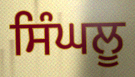
ਸਿੰਘਲੂ